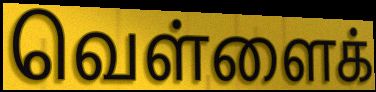
வெள்ளைக்